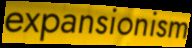
expansionism